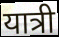
यात्री